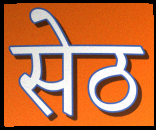
सेठ